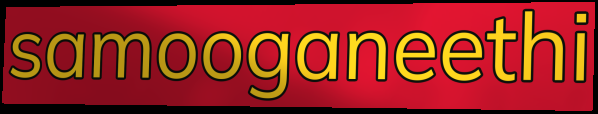
samooganeethi